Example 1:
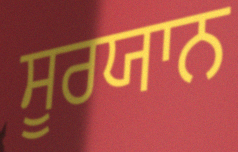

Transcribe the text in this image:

ਸੂਰਯਾਨ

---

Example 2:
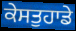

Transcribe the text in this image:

ਕੇਸਤੁਹਾਡੇ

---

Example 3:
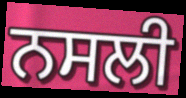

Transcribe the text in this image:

ਨਸਲੀ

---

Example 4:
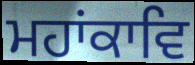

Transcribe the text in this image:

ਮਹਾਂਕਾਵਿ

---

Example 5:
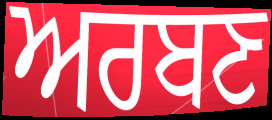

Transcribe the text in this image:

ਅਰਬਣ